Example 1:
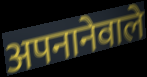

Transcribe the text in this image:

अपनानेवाले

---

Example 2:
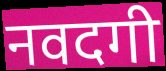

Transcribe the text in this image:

नवदगी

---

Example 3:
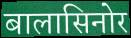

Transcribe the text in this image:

बालासिनोर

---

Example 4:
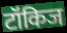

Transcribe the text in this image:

टॉकिज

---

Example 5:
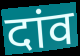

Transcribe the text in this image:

दांव